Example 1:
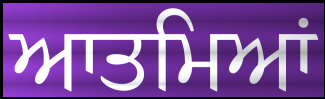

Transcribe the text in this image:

ਆਤਮਿਆਂ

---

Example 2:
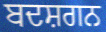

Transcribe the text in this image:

ਬਦਸ਼ਗਨ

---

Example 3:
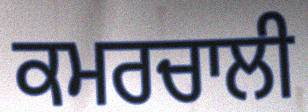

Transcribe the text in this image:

ਕਮਰਚਾਲੀ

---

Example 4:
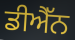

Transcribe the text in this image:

ਡੀਐੱਨ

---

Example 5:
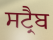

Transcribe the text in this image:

ਸਟ੍ਰੈਬ